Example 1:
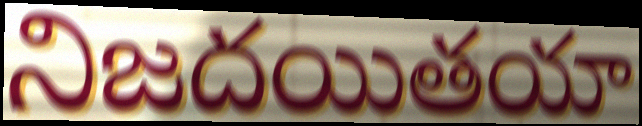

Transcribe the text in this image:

నిజదయితయా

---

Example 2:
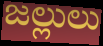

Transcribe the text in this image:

జల్లులు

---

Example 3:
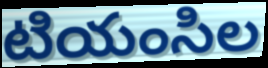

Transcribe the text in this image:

టియంసిల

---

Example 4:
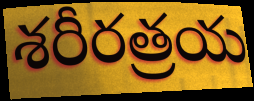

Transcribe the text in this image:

శరీరత్రయ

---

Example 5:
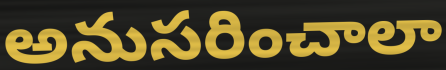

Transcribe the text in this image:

అనుసరించాలా